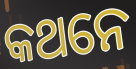
କଥନେ